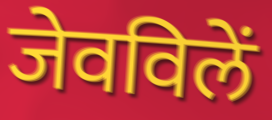
जेवविलें